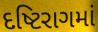
દષ્ટિરાગમાં